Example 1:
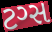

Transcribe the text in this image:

ટગ્સ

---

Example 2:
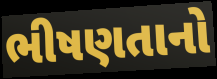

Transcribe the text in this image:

ભીષણતાનો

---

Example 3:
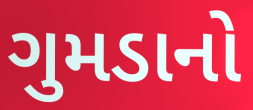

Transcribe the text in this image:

ગુમડાનો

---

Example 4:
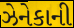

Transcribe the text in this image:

ઝેનેકાની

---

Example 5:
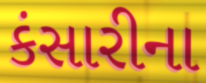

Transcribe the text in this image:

કંસારીના